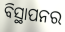
ବିସ୍ଥାପନର